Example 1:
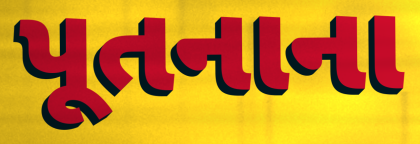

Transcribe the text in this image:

પૂતનાના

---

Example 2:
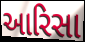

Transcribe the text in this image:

આરિસા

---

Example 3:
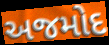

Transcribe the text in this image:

અજમોદ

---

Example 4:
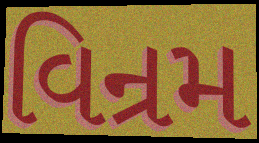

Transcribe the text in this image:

વિન્રમ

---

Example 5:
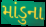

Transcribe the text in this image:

માંડુના